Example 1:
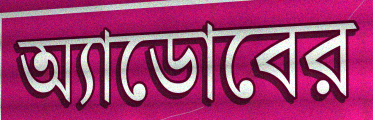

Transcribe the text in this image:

অ্যাডোবের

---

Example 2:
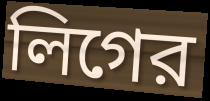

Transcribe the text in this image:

লিগের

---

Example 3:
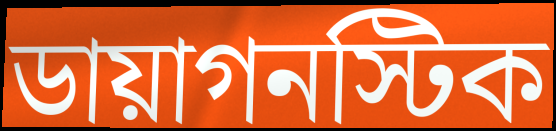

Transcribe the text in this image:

ডায়াগনস্টিক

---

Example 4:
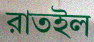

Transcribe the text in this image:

রাতইল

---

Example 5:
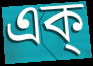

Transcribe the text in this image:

এক্